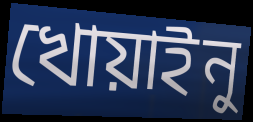
খোয়াইনু